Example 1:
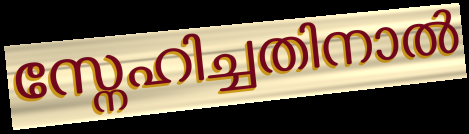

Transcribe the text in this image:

സ്നേഹിച്ചതിനാൽ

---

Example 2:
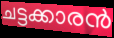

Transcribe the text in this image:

ചട്ടക്കാരൻ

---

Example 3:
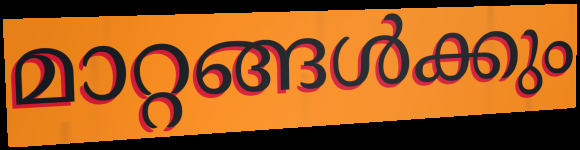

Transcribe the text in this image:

മാറ്റങ്ങൾക്കും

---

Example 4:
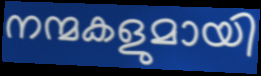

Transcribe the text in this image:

നന്മകളുമായി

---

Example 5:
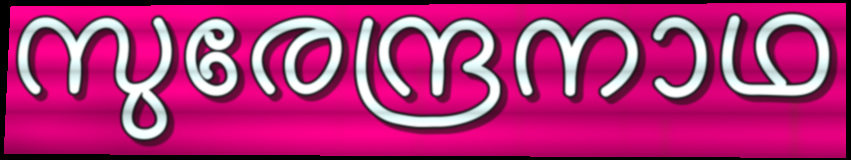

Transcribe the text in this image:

സുരേന്ദ്രനാഥ